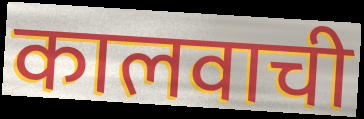
कालवाची